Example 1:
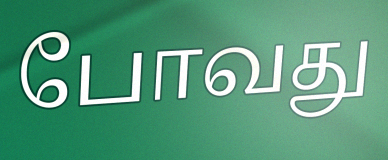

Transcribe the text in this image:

போவது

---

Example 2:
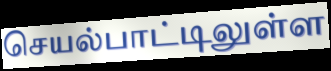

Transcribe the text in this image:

செயல்பாட்டிலுள்ள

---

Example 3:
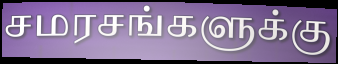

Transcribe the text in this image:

சமரசங்களுக்கு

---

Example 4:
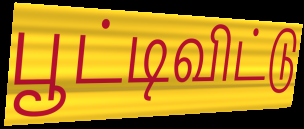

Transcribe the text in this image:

பூட்டிவிட்டு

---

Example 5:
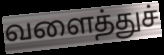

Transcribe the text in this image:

வளைத்துச்